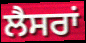
ਲੈਸਰਾਂ